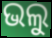
ଭଲୁ